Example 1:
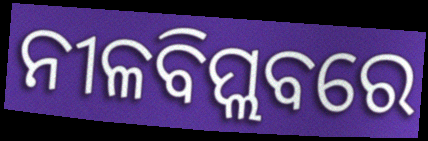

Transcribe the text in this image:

ନୀଳବିପ୍ଲବରେ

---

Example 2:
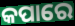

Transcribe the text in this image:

କପାରେ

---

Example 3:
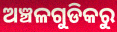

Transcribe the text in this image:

ଅଞ୍ଚଳଗୁଡିକରୁ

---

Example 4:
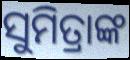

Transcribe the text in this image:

ସୁମିତ୍ରାଙ୍କ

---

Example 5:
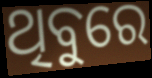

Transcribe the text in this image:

ଥିବୁରେ